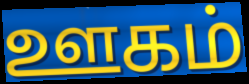
ஊகம்